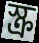
স্ক্র